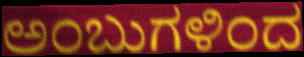
ಅಂಬುಗಳಿಂದ